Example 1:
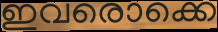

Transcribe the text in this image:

ഇവരൊക്കെ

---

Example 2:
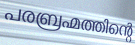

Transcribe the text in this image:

പരബ്രഹ്മത്തിന്റെ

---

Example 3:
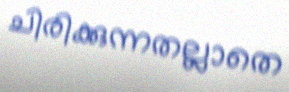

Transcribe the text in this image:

ചിരിക്കുന്നതല്ലാതെ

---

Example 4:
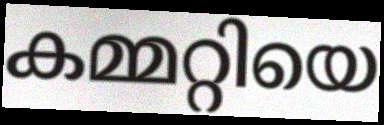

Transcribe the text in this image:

കമ്മറ്റിയെ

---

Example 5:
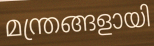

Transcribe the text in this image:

മന്ത്രങ്ങളായി